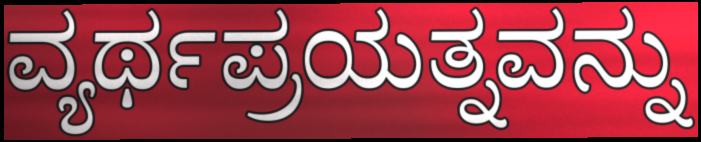
ವ್ಯರ್ಥಪ್ರಯತ್ನವನ್ನು